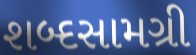
શબ્દસામગ્રી